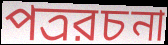
পত্ররচনা